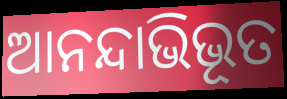
ଆନନ୍ଦାଭିଭୂତ